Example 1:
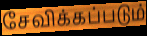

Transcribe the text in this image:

சேவிக்கப்படும்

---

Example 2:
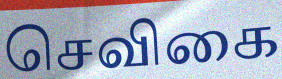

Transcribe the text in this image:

செவிகை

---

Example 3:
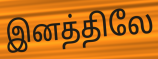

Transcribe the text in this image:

இனத்திலே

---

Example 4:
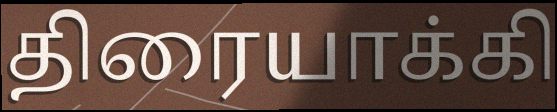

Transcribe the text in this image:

திரையாக்கி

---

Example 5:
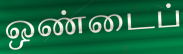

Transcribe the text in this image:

ஒண்டைப்